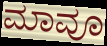
ಮಾವೂ